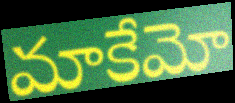
మాకేమో